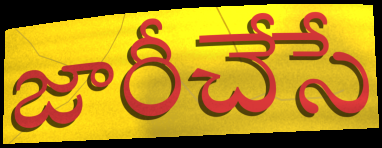
జారీచేసే